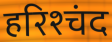
हरिश्चंद